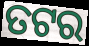
ତଟର